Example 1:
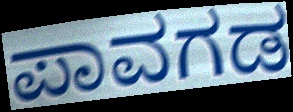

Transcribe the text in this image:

ಪಾವಗಡ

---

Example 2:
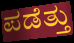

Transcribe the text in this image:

ಪಡೆತ್ತು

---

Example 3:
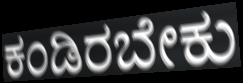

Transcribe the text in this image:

ಕಂಡಿರಬೇಕು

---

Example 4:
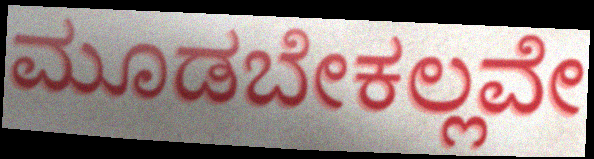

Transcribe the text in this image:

ಮೂಡಬೇಕಲ್ಲವೇ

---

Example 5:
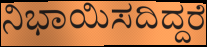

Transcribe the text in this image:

ನಿಭಾಯಿಸದಿದ್ದರೆ